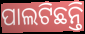
ପାଲଟିଛନ୍ତି